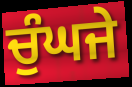
ਚੁੰਘਜੇ